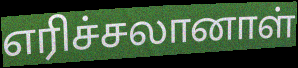
எரிச்சலானாள்